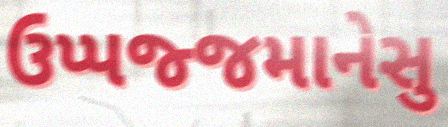
ઉપ્પજ્જમાનેસુ